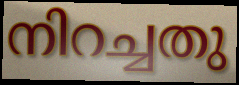
നിറച്ചതു